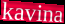
kavina